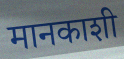
मानकाशी